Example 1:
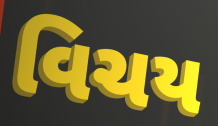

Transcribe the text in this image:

વિચય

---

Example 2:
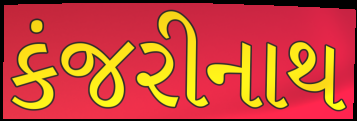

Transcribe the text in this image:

કંજરીનાથ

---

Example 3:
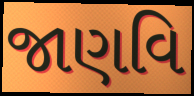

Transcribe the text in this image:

જાણવિ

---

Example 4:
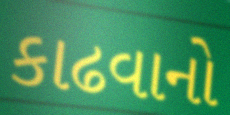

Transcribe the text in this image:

કાઢવાનો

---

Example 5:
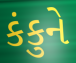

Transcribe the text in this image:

કંકુને